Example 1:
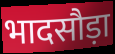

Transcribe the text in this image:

भादसौड़ा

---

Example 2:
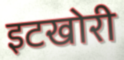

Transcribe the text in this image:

इटखोरी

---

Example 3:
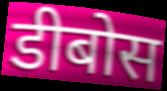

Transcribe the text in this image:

डीबोस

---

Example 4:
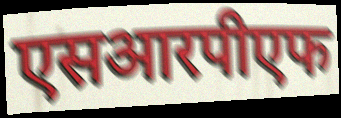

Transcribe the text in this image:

एसआरपीएफ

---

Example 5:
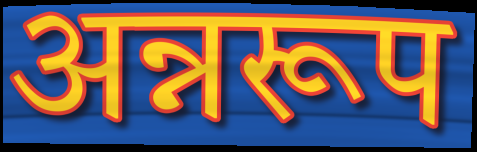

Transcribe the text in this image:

अन्नरूप